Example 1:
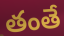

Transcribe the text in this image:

తంతే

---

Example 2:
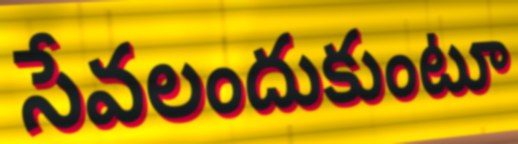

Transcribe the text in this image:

సేవలందుకుంటూ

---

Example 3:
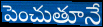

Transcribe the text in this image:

పెంచుతూనే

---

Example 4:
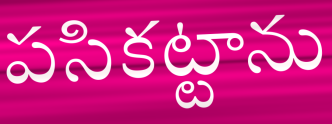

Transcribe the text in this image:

పసికట్టాను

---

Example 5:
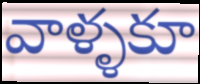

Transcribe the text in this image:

వాళ్ళకూ